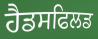
ਹੈਡਸਫਿਲਡ